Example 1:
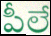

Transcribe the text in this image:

పీలే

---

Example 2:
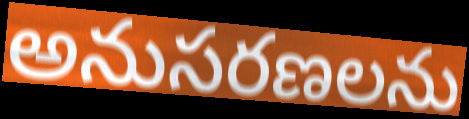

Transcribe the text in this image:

అనుసరణలను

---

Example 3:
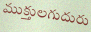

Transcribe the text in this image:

ముక్తులగుదురు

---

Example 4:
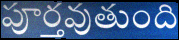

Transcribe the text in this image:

పూర్తవుతుంది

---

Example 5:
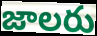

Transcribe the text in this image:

జాలరు